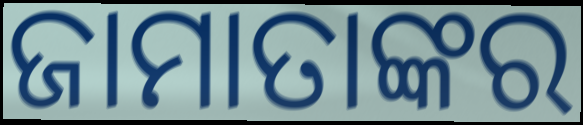
ଜାମାତାଙ୍କର